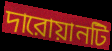
দারোয়ানটি